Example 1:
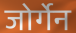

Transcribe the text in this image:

जोर्गेन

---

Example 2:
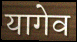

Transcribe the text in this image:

यागेव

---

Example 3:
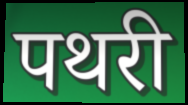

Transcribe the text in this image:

पथरी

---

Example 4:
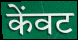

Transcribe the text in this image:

केंवट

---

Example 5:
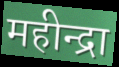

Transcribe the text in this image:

महीन्द्रा